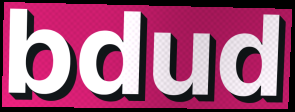
bdud